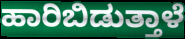
ಹಾರಿಬಿಡುತ್ತಾಳೆ